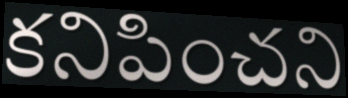
కనిపించని